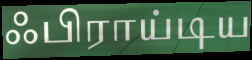
ஃபிராய்டிய